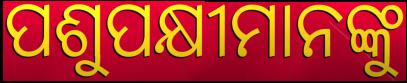
ପଶୁପକ୍ଷୀମାନଙ୍କୁ